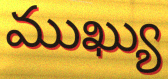
ముఖ్యు